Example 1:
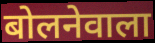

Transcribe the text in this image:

बोलनेवाला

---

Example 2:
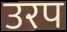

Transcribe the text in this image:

उरप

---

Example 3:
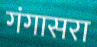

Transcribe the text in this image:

गंगासरा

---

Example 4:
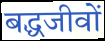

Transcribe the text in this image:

बद्धजीवों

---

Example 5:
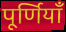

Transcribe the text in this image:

पूर्णियाँ